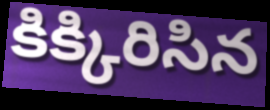
కిక్కిరిసిన